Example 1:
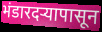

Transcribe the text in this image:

भंडारदऱ्यापासून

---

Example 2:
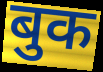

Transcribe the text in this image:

बुक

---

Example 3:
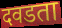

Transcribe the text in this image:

दवडता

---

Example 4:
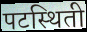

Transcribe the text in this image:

पटस्थिती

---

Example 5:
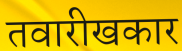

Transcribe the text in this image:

तवारीखकार